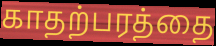
காதற்பரத்தை